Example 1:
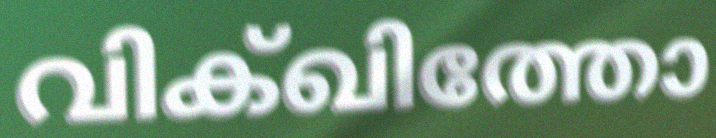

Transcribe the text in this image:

വിക്ഖിത്തോ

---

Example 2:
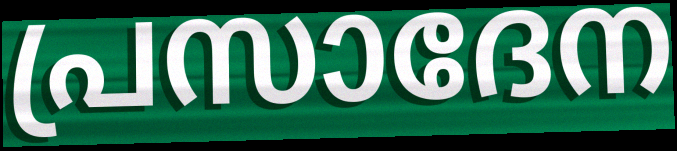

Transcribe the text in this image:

പ്രസാദേന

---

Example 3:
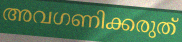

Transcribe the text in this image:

അവഗണിക്കരുത്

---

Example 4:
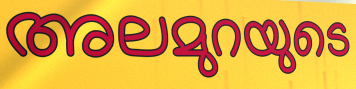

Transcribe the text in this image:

അലമുറയുടെ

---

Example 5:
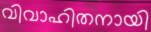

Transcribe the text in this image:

വിവാഹിതനായി